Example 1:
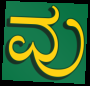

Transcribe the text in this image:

ವು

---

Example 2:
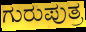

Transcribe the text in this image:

ಗುರುಪುತ್ರ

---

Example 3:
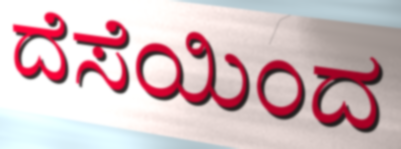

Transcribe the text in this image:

ದೆಸೆಯಿಂದ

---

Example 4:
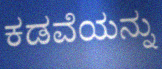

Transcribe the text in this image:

ಕಡವೆಯನ್ನು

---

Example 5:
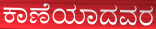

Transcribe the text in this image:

ಕಾಣೆಯಾದವರ